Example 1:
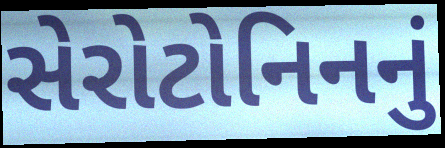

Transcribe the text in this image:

સેરોટોનિનનું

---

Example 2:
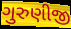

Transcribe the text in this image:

ગુરુણીજી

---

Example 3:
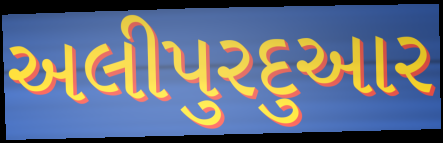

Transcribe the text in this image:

અલીપુરદુઆર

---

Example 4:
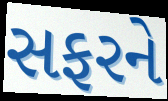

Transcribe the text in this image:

સફરને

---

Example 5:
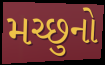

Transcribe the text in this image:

મચ્છુનો